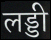
लड्डी